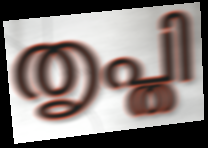
തൃപ്തി